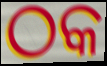
ଠକ